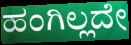
ಹಂಗಿಲ್ಲದೇ